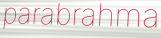
parabrahma